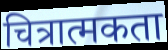
चित्रात्मकता